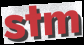
stm